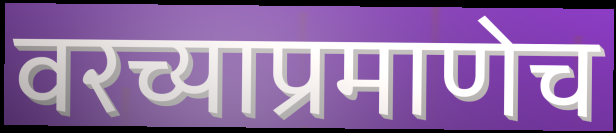
वरच्याप्रमाणेच